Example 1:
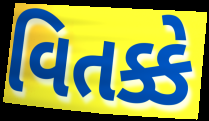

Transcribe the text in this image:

વિતક્કે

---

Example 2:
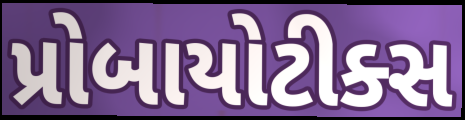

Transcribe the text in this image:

પ્રોબાયોટીક્સ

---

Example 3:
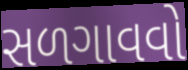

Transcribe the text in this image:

સળગાવવો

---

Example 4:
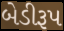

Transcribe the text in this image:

બેડીરૂપ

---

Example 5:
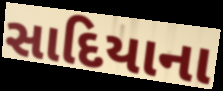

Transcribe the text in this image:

સાદિયાના